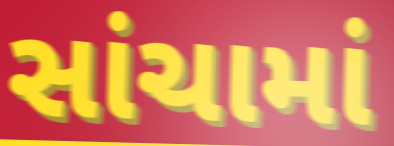
સાંચામાં